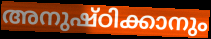
അനുഷ്ഠിക്കാനും